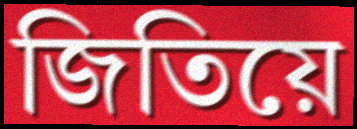
জিতিয়ে